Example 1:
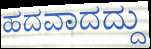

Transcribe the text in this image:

ಹದವಾದದ್ದು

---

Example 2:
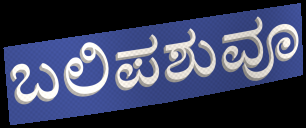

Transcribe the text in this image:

ಬಲಿಪಶುವೂ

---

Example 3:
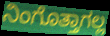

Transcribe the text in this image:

ನಿಂಗೊತ್ತಾಗಲ್ಲ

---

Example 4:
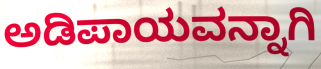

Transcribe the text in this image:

ಅಡಿಪಾಯವನ್ನಾಗಿ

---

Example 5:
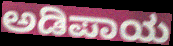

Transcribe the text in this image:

ಅಡಿಪಾಯ